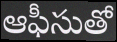
ఆఫీసుతో